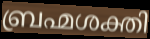
ബ്രഹ്മശക്തി